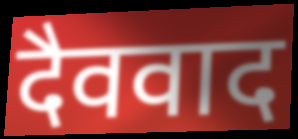
दैववाद